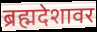
ब्रह्मदेशावर